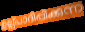
ഉല്പ്പാദിപ്പിക്കുന്ന